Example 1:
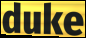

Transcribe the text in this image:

duke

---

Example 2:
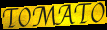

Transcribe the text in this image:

TOMATO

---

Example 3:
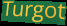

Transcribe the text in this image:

Turgot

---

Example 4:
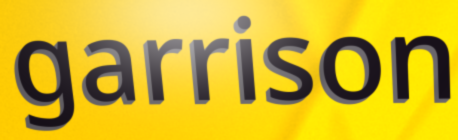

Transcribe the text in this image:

garrison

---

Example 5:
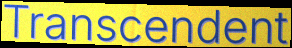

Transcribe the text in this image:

Transcendent